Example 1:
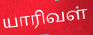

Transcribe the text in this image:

யாரிவள்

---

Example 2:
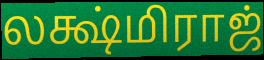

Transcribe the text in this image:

லக்ஷ்மிராஜ்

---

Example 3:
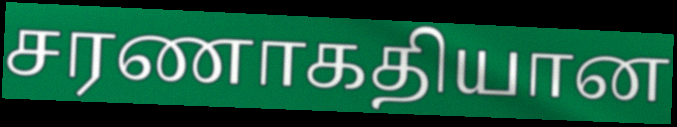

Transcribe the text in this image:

சரணாகதியான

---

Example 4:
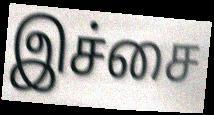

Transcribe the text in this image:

இச்சை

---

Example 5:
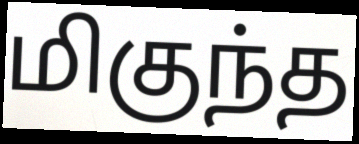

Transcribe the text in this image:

மிகுந்த